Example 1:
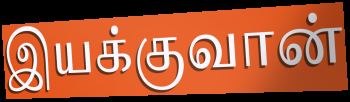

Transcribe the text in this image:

இயக்குவான்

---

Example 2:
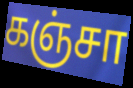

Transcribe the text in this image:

கஞ்சா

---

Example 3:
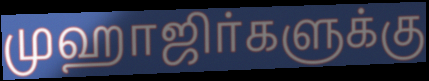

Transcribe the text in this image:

முஹாஜிர்களுக்கு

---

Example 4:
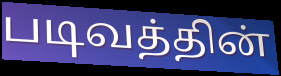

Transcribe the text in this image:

படிவத்தின்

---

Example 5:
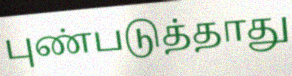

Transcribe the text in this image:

புண்படுத்தாது